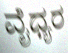
ವೈಧ್ಯರ